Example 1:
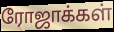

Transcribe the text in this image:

ரோஜாக்கள்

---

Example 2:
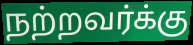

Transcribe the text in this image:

நற்றவர்க்கு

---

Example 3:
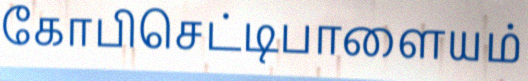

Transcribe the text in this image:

கோபிசெட்டிபாளையம்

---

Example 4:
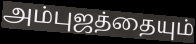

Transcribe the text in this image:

அம்புஜத்தையும்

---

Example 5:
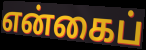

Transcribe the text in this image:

என்கைப்